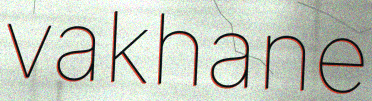
vakhane